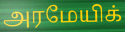
அரமேயிக்